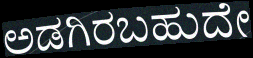
ಅಡಗಿರಬಹುದೇ